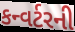
કન્વર્ટરની